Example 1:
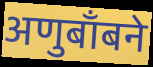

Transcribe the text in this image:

अणुबाँबने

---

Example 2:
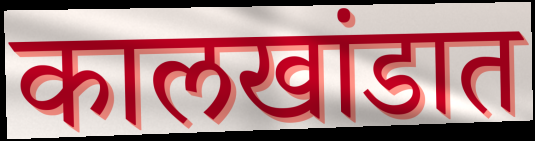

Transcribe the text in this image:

कालखांडात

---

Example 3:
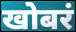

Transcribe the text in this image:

खोबरं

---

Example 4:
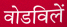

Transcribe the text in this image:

वोडविलें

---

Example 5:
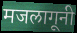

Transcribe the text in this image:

मजलागूनी